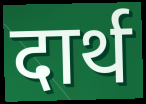
दार्थ